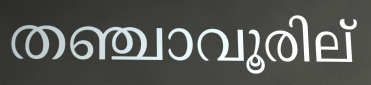
തഞ്ചാവൂരില്